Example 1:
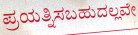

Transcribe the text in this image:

ಪ್ರಯತ್ನಿಸಬಹುದಲ್ಲವೇ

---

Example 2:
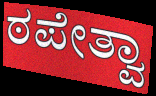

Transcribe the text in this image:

ಠಪೇತ್ವಾ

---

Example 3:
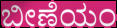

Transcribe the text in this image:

ಬೀಣೆಯಂ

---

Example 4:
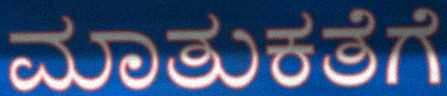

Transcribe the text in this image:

ಮಾತುಕತೆಗೆ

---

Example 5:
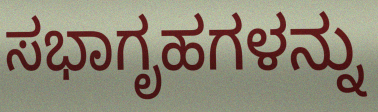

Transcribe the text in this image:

ಸಭಾಗೃಹಗಳನ್ನು